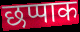
छप्पाक